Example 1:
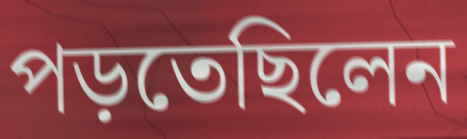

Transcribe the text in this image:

পড়তেছিলেন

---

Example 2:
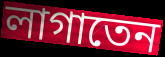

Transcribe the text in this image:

লাগাতেন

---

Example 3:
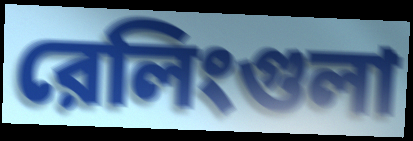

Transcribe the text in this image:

রেলিংগুলা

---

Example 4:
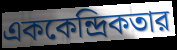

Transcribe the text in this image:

এককেন্দ্রিকতার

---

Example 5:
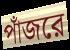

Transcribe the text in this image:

পাঁজরে